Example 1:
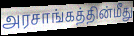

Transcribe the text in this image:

அரசாங்கத்தின்மீது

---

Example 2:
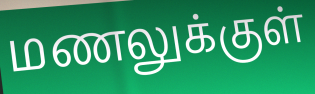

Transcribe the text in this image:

மணலுக்குள்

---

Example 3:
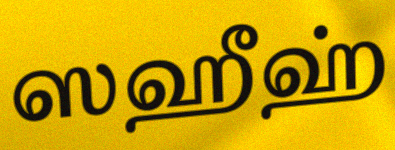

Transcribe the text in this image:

ஸஹீஹ்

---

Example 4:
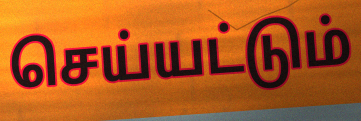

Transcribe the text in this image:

செய்யட்டும்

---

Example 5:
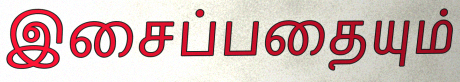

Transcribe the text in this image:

இசைப்பதையும்